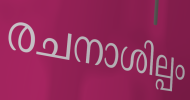
രചനാശില്പം